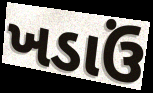
ખડાઉં